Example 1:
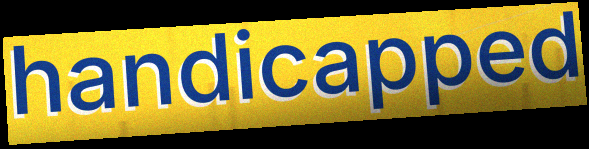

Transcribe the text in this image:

handicapped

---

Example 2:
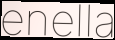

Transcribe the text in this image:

enella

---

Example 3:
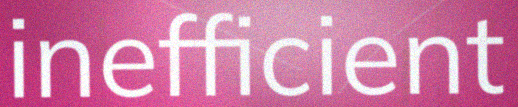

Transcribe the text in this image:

inefficient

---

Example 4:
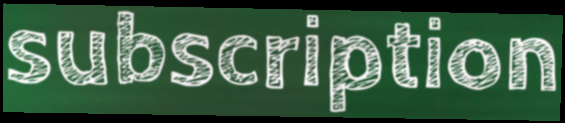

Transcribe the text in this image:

subscription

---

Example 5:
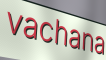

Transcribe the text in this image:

vachana